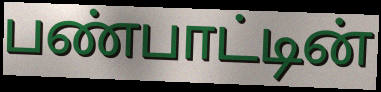
பண்பாட்டின்